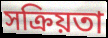
সক্ৰিয়তা